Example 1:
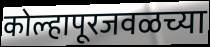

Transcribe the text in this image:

कोल्हापूरजवळच्या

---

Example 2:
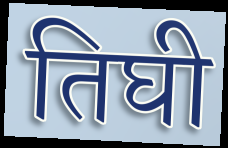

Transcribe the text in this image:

तिघी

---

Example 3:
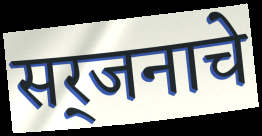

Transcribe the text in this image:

सर्जनाचे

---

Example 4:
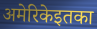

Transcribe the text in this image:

अमेरिकेइतका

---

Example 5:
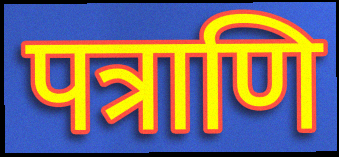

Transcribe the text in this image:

पत्राणि